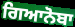
ਗਿਆਨੋਬਾ